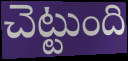
చెట్టుంది